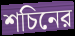
শচিনের